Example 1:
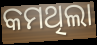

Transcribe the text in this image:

କମଥିଲା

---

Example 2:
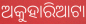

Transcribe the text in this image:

ଅକୁହାରିଆଟା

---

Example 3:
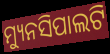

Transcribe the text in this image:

ମ୍ୟୁନସିପାଲଟି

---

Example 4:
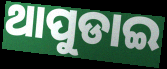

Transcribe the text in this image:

ଥାପୁଡାଇ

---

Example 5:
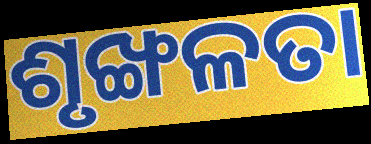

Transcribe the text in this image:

ଶୃଙ୍ଖଳତା